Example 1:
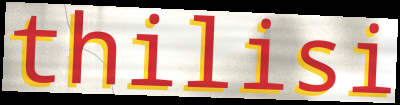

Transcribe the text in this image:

thilisi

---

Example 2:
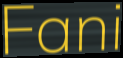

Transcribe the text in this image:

Fani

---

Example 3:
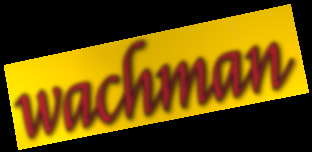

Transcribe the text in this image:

wachman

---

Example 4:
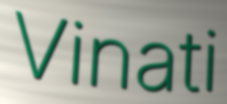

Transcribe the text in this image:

Vinati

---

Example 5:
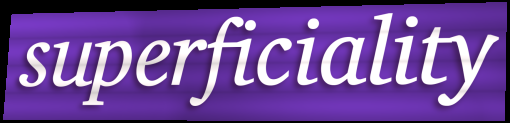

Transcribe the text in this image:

superficiality